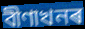
বীণাখনৰ